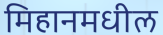
मिहानमधील